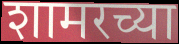
शामरच्या